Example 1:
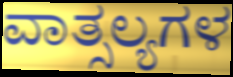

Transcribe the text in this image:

ವಾತ್ಸಲ್ಯಗಳ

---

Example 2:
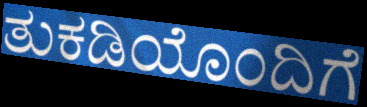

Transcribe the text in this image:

ತುಕಡಿಯೊಂದಿಗೆ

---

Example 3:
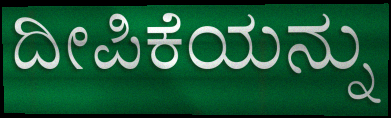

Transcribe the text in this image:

ದೀಪಿಕೆಯನ್ನು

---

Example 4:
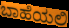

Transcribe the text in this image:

ಬಾಹೆಯಲಿ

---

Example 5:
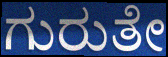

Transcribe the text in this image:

ಗುರುತೇ